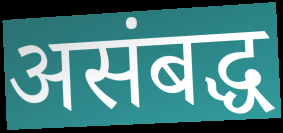
असंबद्ध